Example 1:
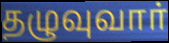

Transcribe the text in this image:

தழுவுவார்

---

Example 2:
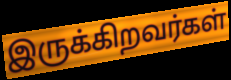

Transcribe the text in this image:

இருக்கிறவர்கள்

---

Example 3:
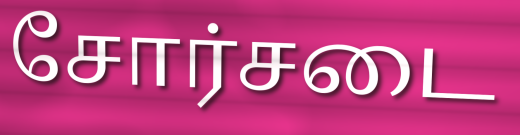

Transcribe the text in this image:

சோர்சடை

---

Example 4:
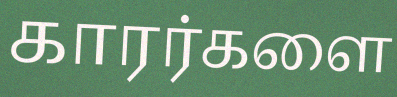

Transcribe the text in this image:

காரர்களை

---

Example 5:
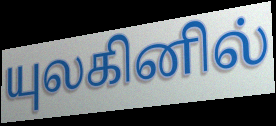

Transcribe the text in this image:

யுலகினில்